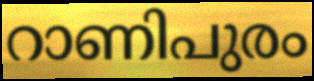
റാണിപുരം